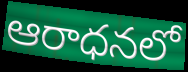
ఆరాధనలో